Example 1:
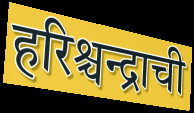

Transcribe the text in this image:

हरिश्चन्द्राची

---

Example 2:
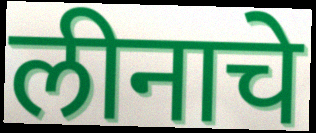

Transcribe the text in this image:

लीनाचे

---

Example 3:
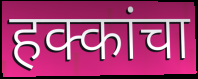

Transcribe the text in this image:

हक्कांचा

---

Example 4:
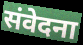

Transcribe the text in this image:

संवेदना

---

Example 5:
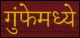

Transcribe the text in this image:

गुंफेमध्ये